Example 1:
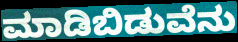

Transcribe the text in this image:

ಮಾಡಿಬಿಡುವೆನು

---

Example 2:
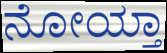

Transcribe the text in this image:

ನೋಯ್ತಾ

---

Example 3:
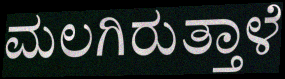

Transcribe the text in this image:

ಮಲಗಿರುತ್ತಾಳೆ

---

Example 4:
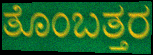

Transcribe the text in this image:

ತೊಂಬತ್ತರ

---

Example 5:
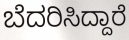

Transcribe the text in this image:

ಬೆದರಿಸಿದ್ದಾರೆ